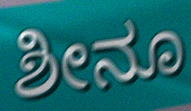
ಶೀನೂ